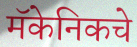
मॅकेनिकचे